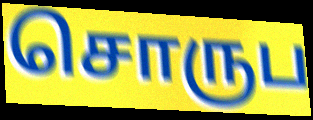
சொருப